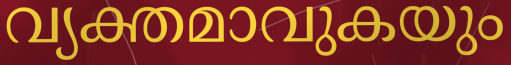
വ്യക്തമാവുകയും